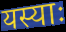
यस्याः